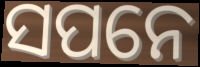
ସପନେ